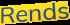
Rends